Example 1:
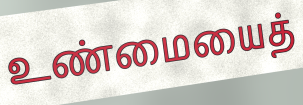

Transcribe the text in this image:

உண்மையைத்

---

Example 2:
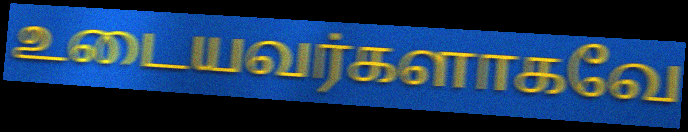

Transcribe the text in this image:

உடையவர்களாகவே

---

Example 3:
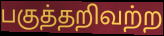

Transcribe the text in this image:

பகுத்தறிவற்ற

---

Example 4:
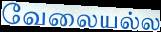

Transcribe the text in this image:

வேலையல்ல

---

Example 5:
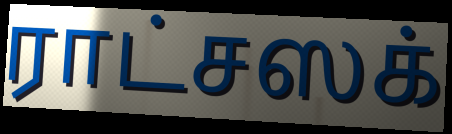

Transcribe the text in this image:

ராட்சஸக்